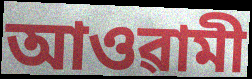
আওৱামী